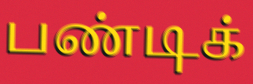
பண்டிக்